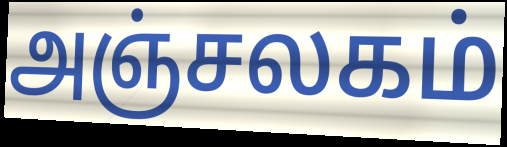
அஞ்சலகம்